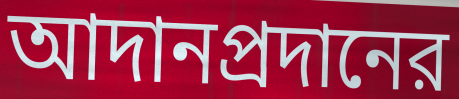
আদানপ্রদানের